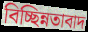
বিচ্ছিন্নতাবাদ